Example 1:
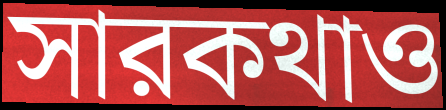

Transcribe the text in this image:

সারকথাও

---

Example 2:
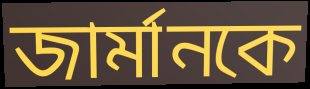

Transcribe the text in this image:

জার্মানকে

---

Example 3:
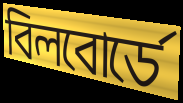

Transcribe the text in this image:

বিলবোর্ডে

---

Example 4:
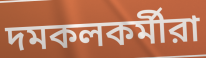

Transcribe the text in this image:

দমকলকর্মীরা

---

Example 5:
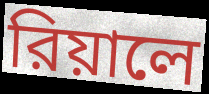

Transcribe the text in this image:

রিয়ালে